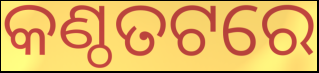
କଣ୍ଠତଟରେ